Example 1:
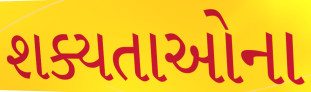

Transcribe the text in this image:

શક્યતાઓના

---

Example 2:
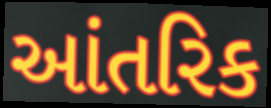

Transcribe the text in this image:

આંતરિક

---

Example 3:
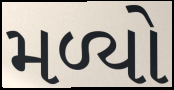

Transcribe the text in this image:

મળ્યો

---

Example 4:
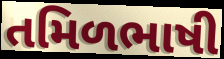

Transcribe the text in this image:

તમિળભાષી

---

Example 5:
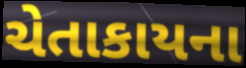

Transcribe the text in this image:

ચેતાકાયના